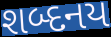
શબ્દનય